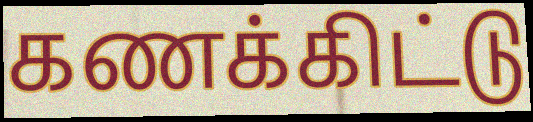
கணக்கிட்டு